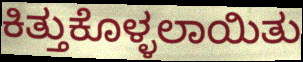
ಕಿತ್ತುಕೊಳ್ಳಲಾಯಿತು